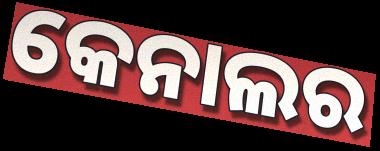
କେନାଲର